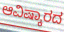
ಆವಿಷ್ಕಾರದ